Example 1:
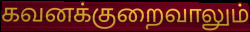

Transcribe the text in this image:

கவனக்குறைவாலும்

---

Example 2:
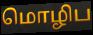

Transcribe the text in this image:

மொழிப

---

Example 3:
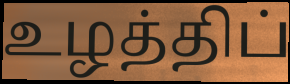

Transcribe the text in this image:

உழத்திப்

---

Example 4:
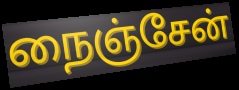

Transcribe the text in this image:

நைஞ்சேன்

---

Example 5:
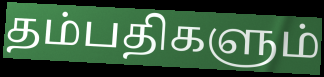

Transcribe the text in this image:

தம்பதிகளும்